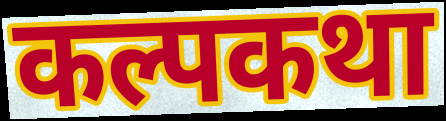
कल्पकथा